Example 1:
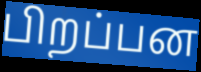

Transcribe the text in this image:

பிறப்பன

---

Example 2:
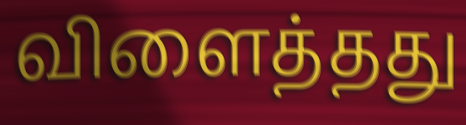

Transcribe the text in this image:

விளைத்தது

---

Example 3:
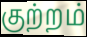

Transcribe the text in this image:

குற்றம்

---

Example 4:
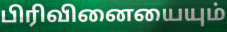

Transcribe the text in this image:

பிரிவினையையும்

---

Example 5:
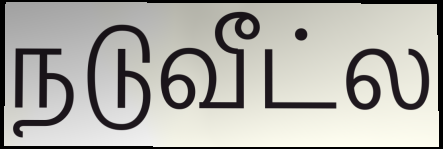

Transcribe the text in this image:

நடுவீட்ல